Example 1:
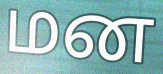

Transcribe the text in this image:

மன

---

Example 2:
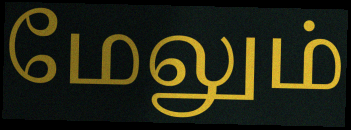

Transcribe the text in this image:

மேலும்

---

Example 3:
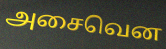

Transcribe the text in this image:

அசைவென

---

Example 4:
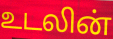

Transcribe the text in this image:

உடலின்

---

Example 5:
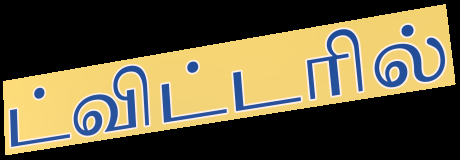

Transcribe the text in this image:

ட்விட்டரில்